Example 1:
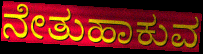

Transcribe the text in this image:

ನೇತುಹಾಕುವ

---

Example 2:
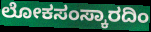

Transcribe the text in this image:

ಲೋಕಸಂಸ್ಕಾರದಿಂ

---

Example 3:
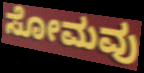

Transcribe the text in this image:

ಸೋಮವು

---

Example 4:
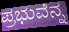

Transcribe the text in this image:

ಪ್ರಭುವೆನ್ನ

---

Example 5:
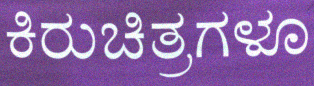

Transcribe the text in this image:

ಕಿರುಚಿತ್ರಗಳೂ